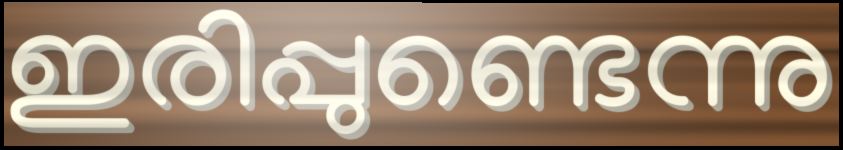
ഇരിപ്പുണ്ടെന്നു